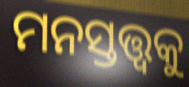
ମନସ୍ତତ୍ତ୍ୱକୁ